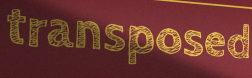
transposed